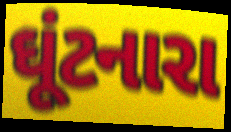
ઘૂંટનારા